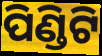
ପିଣ୍ଡିଟି